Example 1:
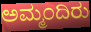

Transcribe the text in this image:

ಅಮ್ಮಂದಿರು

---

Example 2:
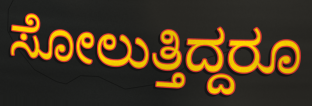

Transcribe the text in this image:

ಸೋಲುತ್ತಿದ್ದರೂ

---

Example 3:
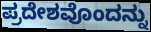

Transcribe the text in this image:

ಪ್ರದೇಶವೊಂದನ್ನು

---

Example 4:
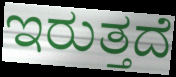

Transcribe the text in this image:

ಇರುತ್ತದೆ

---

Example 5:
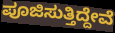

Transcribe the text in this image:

ಪೂಜಿಸುತ್ತಿದ್ದೇವೆ